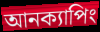
আনক্যাপিং